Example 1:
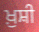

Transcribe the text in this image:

ਖ਼ੁਸ਼ੀ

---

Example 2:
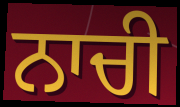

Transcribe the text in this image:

ਨਾਚੀ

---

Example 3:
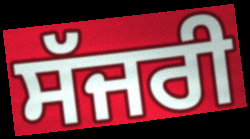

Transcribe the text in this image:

ਸੱਜਰੀ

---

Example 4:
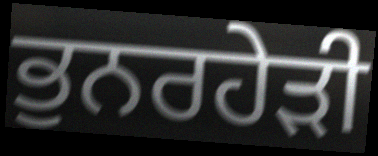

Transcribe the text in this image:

ਭੁਨਰਹੇੜੀ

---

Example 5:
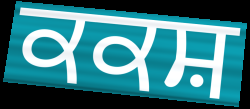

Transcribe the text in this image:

ਕਕਸ਼